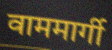
वाममार्गी